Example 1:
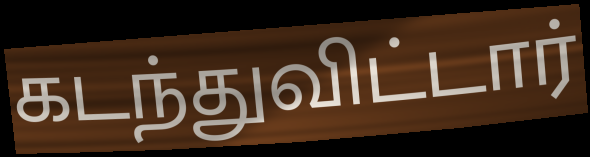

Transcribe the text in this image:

கடந்துவிட்டார்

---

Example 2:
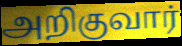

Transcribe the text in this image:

அறிகுவார்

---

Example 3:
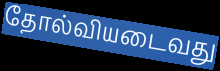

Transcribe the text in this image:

தோல்வியடைவது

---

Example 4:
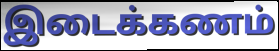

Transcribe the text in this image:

இடைக்கணம்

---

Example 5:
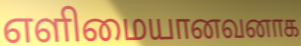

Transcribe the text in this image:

எளிமையானவனாக